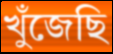
খুঁজেছি